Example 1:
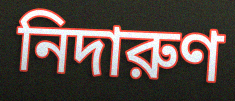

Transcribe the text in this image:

নিদারুণ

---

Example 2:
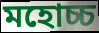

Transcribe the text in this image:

মহোচ্চ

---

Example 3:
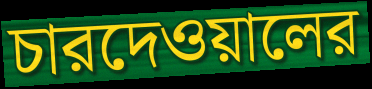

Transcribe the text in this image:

চারদেওয়ালের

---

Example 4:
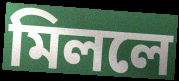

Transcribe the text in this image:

মিললে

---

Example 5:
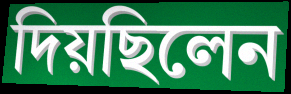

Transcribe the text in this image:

দিয়ছিলেন